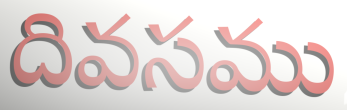
దివసము